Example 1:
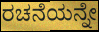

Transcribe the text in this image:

ರಚನೆಯನ್ನೇ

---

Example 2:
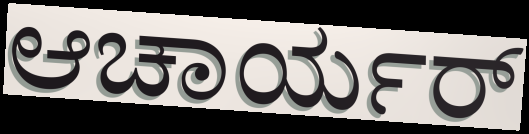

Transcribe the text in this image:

ಆಚಾರ್ಯರ್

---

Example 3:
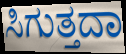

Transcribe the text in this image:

ಸಿಗುತ್ತದಾ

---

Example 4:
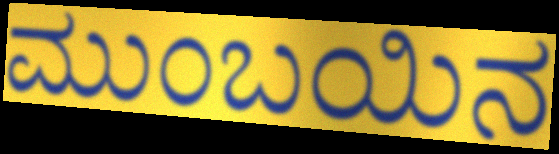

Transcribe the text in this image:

ಮುಂಬಯಿನ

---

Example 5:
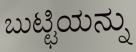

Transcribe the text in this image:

ಬುಟ್ಟಿಯನ್ನು